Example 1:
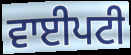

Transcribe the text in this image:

ਵਾਈਪਟੀ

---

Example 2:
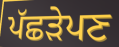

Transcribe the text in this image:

ਪੱਛੜੇਪਣ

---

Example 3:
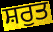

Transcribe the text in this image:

ਸ਼ਰੁਤ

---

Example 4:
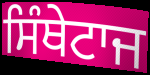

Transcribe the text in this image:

ਸਿੰਥੇਟਾਜ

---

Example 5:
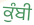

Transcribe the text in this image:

ਕੁੰਬੀ